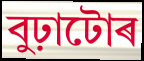
বুঢ়াটোৰ